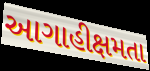
આગાહીક્ષમતા